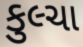
કુલ્ચા